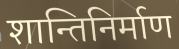
शान्तिनिर्माण